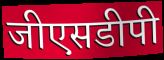
जीएसडीपी